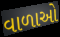
વાળાઓ